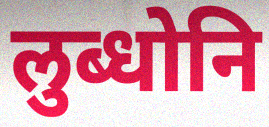
लुब्धोनि